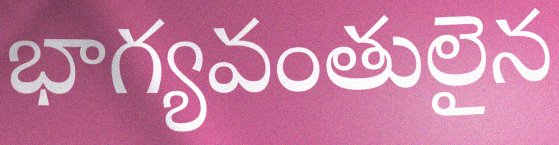
భాగ్యవంతులైన